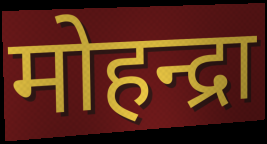
मोहन्द्रा